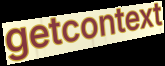
getcontext